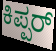
ಕಿಪ್ಪರ್